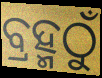
ବ୍ରହ୍ମଠୁଁ